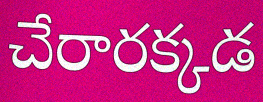
చేరారక్కడ